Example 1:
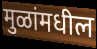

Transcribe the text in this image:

मुळांमधील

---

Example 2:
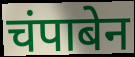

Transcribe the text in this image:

चंपाबेन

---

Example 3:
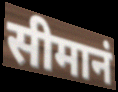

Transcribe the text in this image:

सीमानं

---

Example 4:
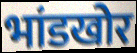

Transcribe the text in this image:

भांडखोर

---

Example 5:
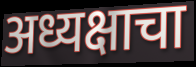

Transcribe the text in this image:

अध्यक्षाचा